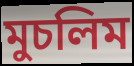
মুচলিম